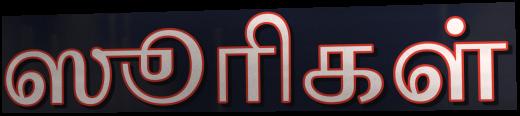
ஸூரிகள்